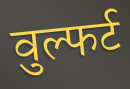
वुल्फर्ट